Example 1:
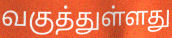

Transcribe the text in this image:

வகுத்துள்ளது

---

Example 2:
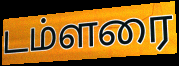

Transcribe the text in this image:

டம்ளரை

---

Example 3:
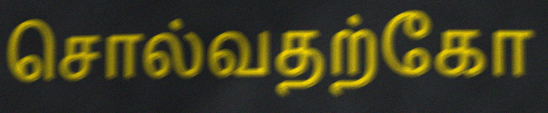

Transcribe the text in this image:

சொல்வதற்கோ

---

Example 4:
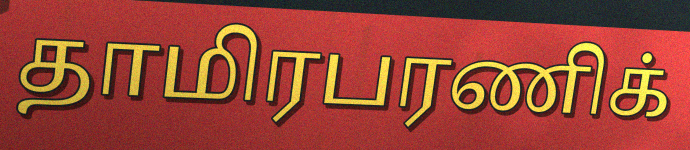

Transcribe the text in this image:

தாமிரபரணிக்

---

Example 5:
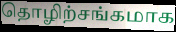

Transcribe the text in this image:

தொழிற்சங்கமாக